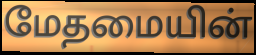
மேதமையின்